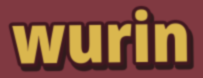
wurin